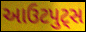
આઉટપુટ્સ